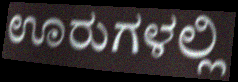
ಊರುಗಳಲ್ಲಿ